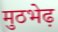
मुठभेढ़